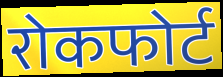
रोकफोर्ट